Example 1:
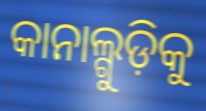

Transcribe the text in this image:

କାନାଲ୍ଗୁଡ଼ିକୁ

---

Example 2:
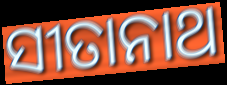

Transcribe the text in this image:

ସୀତାନାଥ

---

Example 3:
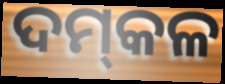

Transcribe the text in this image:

ଦମ୍‌କଳ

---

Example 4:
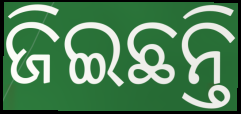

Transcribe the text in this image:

ଜିଇଛନ୍ତି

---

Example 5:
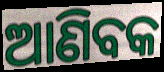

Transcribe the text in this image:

ଆଣିବକ